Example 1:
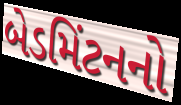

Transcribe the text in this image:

બેડમિંટનનો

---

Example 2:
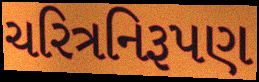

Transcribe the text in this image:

ચરિત્રનિરૂપણ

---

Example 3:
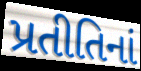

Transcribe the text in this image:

પ્રતીતિનાં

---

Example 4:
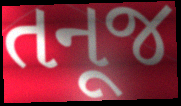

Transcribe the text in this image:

તનૂજ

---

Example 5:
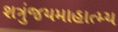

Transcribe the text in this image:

શત્રુંજયમાહાત્મ્ય